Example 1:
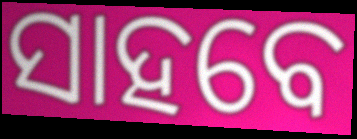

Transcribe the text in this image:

ସାହବେ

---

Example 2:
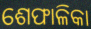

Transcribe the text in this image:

ଶେଫାଳିକା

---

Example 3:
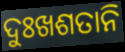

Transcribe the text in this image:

ଦୁଃଖଶତାନି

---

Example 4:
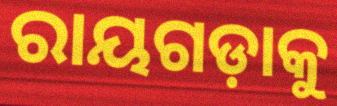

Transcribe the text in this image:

ରାୟଗଡ଼ାକୁ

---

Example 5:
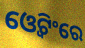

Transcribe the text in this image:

ଓ୍ୱେଟିଂରେ